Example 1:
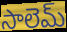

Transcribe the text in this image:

సాలెమ్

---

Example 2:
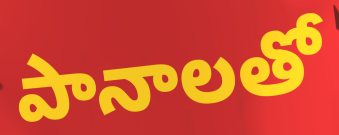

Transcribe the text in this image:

పానాలతో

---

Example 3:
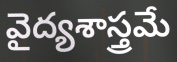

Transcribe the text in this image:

వైద్యశాస్త్రమే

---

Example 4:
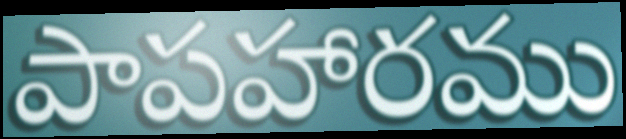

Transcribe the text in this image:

పాపహారము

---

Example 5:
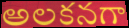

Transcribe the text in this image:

అలకనగా